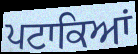
ਪਟਾਕਿਆਂ